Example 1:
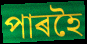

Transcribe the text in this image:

পাৰহৈ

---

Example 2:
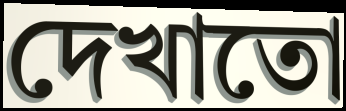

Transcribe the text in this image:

দেখাতো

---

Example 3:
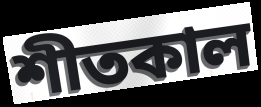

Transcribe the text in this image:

শীতকাল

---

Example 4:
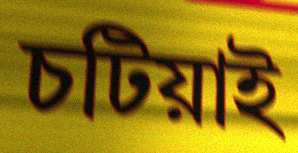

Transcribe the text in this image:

চটিয়াই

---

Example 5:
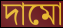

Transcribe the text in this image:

দামো